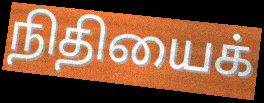
நிதியைக்